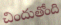
చిందుతోంది